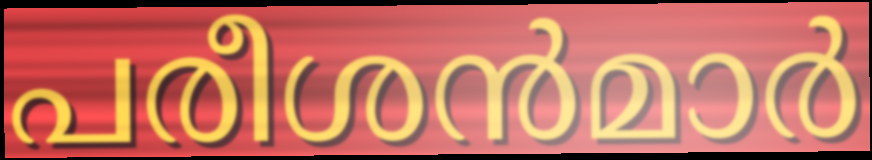
പരീശൻമാർ